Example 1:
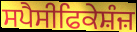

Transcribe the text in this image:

ਸਪੈਸੀਫਿਕੇਸ਼ੰਜ਼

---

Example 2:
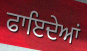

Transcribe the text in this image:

ਫਾਇਦੇਆਂ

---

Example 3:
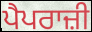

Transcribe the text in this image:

ਪੈਪਰਾਜ਼ੀ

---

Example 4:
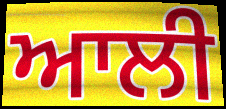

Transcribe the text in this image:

ਆਲੀ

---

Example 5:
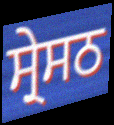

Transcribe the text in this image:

ਸ੍ਰੇਸਠ